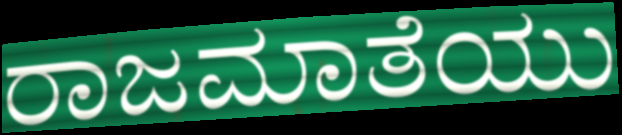
ರಾಜಮಾತೆಯು